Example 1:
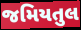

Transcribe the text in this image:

જમિયતુલ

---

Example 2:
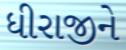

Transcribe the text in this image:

ધીરાજીને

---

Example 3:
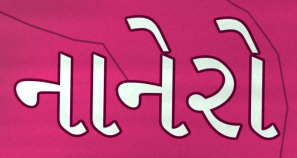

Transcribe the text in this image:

નાનેરો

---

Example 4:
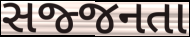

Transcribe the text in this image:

સજ્જનતા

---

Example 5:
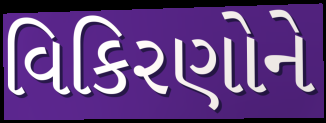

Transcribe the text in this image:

વિકિરણોને